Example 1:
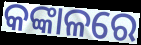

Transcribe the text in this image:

କଙ୍କାଳରେ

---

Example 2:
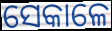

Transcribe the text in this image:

ସେକାଳେ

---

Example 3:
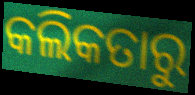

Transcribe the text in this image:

କଲିକତାରୁ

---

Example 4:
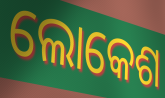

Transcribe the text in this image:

ଲୋକେଶ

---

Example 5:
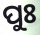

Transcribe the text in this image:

ପୁଃ